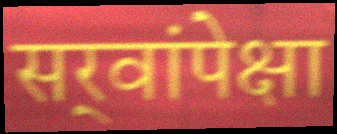
सर्वांपेक्षा